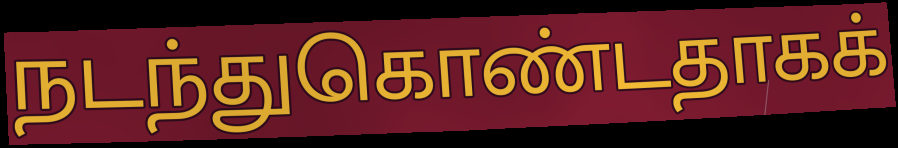
நடந்துகொண்டதாகக்